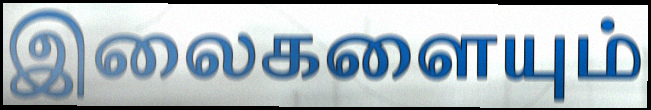
இலைகளையும்